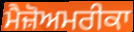
ਮੈਜ਼ੋਅਮਰੀਕਾ